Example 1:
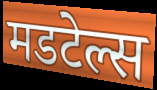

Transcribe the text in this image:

मडटेल्स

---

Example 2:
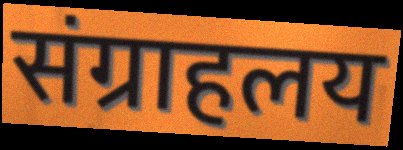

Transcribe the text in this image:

संग्राहलय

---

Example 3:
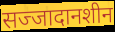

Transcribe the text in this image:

सज्जादानशीन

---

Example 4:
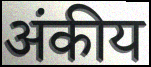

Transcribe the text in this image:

अंकीय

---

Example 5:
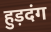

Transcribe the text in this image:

हुड़दंग